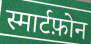
स्मार्टफ़ोन